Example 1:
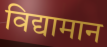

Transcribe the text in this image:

विद्यामान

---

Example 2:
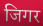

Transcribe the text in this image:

जिगर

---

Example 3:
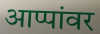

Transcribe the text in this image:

आप्पांवर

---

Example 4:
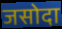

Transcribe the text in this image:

जसोदा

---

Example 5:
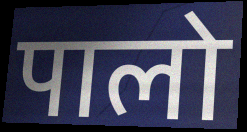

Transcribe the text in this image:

पालो